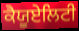
ਕੈਯੂਏਲਿਟੀ